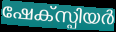
ഷേക്സ്പിയർ